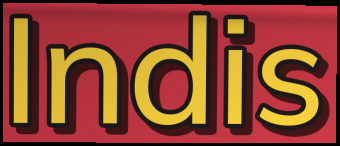
Indis